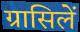
ग्रासिलें